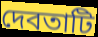
দেবতাটি